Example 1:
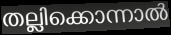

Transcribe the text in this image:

തല്ലിക്കൊന്നാൽ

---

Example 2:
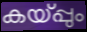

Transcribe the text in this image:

കയ്പ്പും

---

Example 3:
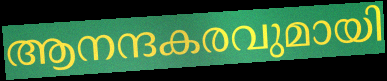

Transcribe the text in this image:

ആനന്ദകരവുമായി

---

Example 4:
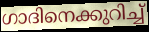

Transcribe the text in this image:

ഗാദിനെക്കുറിച്ച്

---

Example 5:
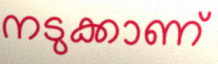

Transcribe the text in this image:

നടുക്കാണ്